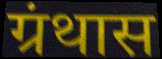
ग्रंथास